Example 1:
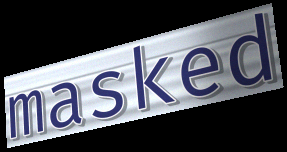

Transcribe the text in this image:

masked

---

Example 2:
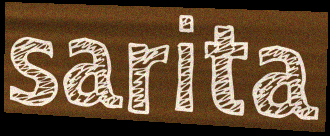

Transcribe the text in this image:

sarita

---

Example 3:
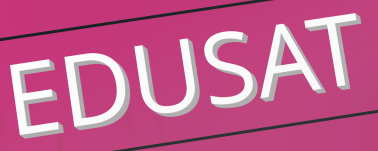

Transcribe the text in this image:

EDUSAT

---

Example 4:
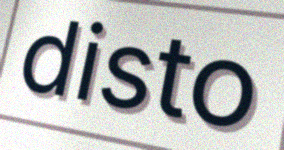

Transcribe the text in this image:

disto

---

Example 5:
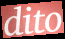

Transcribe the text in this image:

dito